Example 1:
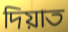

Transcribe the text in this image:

দিয়াত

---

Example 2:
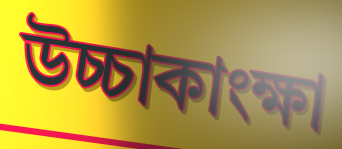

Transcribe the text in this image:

উচ্চাকাংক্ষা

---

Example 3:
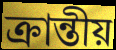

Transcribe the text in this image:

ক্ৰান্তীয়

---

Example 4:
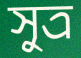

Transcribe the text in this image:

সুত্ৰ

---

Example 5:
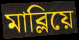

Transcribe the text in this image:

মাব্লিয়ে